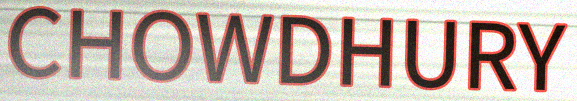
CHOWDHURY